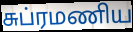
சுப்ரமணிய